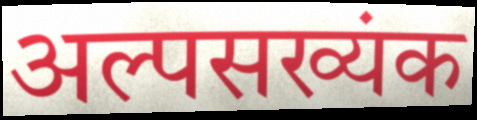
अल्पसख्यंक